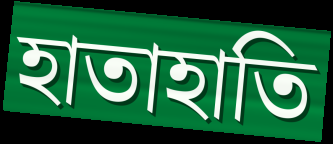
হাতাহাতি